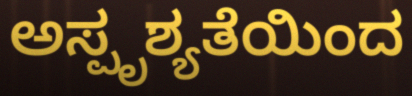
ಅಸ್ಪೃಶ್ಯತೆಯಿಂದ